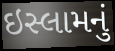
ઇસ્લામનું